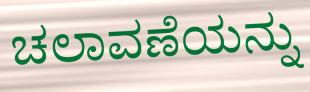
ಚಲಾವಣೆಯನ್ನು